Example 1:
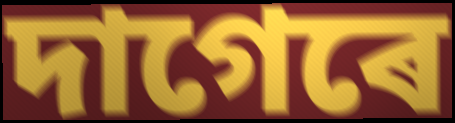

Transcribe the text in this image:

দাগেৰে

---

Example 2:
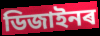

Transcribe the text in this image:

ডিজাইনৰ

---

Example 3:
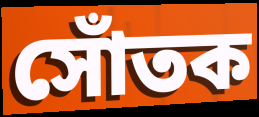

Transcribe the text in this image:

সোঁতক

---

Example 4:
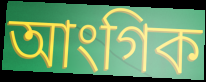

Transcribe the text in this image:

আংগিক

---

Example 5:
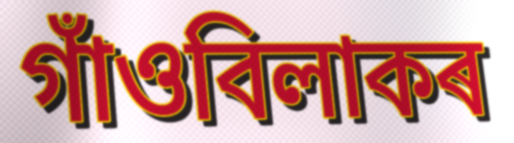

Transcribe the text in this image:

গাঁওবিলাকৰ